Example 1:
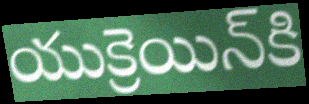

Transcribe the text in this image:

యుక్రెయిన్‌కి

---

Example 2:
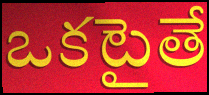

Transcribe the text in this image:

ఒకటైతే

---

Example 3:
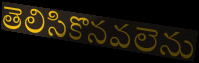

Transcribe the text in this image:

తెలిసికొనవలెను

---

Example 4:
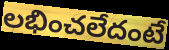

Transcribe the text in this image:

లభించలేదంటే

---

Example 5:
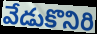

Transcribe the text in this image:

వేడుకొనిరి